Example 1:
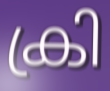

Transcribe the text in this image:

ക്രി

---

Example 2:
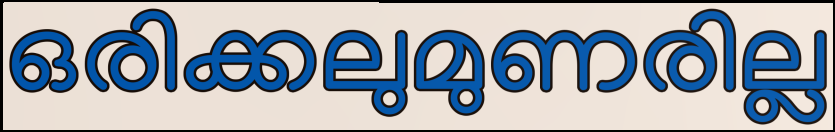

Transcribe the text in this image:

ഒരിക്കലുമുണരില്ല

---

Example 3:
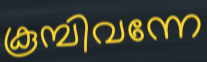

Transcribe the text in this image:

കൂമ്പിവന്നേ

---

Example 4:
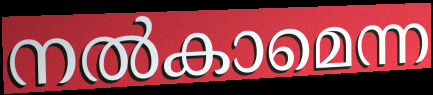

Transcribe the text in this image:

നൽകാമെന്ന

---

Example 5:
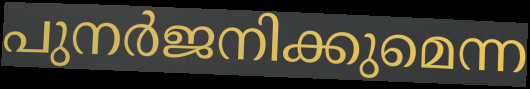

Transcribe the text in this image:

പുനർജനിക്കുമെന്ന